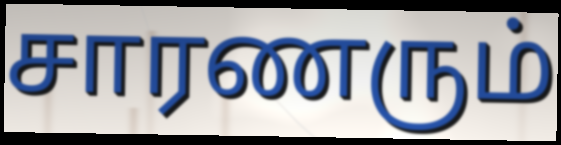
சாரணரும்